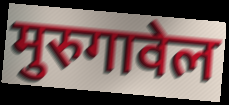
मुरुगावेल